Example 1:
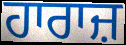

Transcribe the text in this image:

ਹਾਰਾਜ਼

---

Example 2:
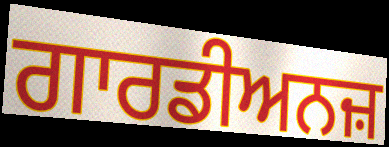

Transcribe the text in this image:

ਗਾਰਡੀਅਨਜ਼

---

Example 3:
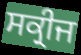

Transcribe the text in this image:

ਸਕ੍ਰੀਜ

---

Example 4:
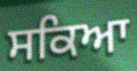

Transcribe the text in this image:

ਸਕਿਆ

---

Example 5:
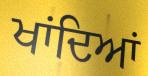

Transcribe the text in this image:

ਖਾਂਦਿਆਂ